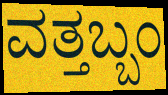
ವತ್ತಬ್ಬಂ